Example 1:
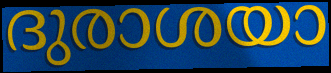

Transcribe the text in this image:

ദുരാശയാ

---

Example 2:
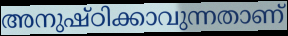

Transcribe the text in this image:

അനുഷ്ഠിക്കാവുന്നതാണ്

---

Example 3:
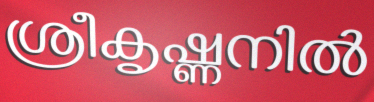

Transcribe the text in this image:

ശ്രീകൃഷ്ണനിൽ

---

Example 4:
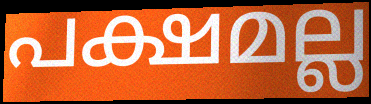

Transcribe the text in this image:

പക്ഷമല്ല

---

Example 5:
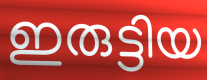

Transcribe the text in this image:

ഇരുട്ടിയ